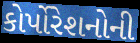
કોર્પોરેશનોની